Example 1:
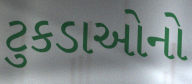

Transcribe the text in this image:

ટુકડાઓનો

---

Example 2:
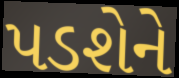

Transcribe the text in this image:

પડશેને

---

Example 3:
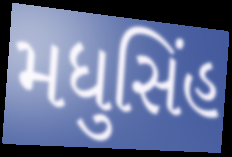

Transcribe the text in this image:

મધુસિંહ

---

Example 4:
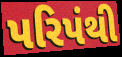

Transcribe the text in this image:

પરિપંથી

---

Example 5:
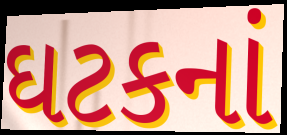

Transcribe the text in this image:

ઘટકનાં